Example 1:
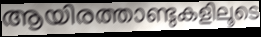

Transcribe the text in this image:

ആയിരത്താണ്ടുകളിലൂടെ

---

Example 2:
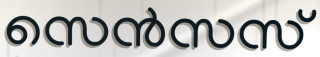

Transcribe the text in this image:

സെൻസസ്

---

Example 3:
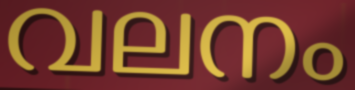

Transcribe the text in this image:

വലനം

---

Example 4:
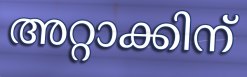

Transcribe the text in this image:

അറ്റാക്കിന്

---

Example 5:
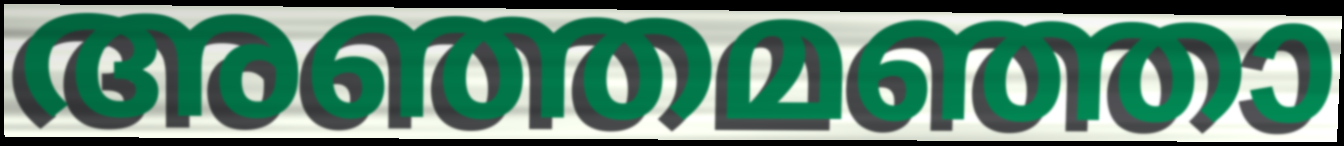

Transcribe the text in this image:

അഞ്ഞമഞ്ഞാ